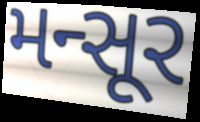
મન્સૂર